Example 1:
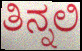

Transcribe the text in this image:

ತಿನ್ನಲಿ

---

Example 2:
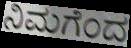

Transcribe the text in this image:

ನಿಮಗೆಂದ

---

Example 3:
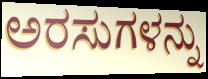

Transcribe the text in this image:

ಅರಸುಗಳನ್ನು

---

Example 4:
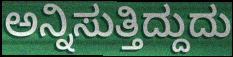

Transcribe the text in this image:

ಅನ್ನಿಸುತ್ತಿದ್ದುದು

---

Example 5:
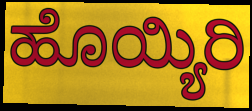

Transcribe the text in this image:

ಹೊಯ್ಯಿರಿ